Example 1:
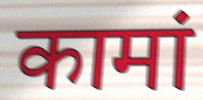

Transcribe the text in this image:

कामां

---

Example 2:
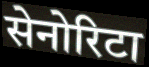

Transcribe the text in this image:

सेनोरिटा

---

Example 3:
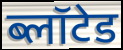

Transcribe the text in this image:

ब्लॉटेड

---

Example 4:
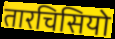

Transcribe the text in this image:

तारचिसियो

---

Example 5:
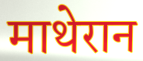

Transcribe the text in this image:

माथेरान